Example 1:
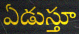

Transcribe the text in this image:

ఏడుస్తూ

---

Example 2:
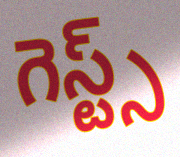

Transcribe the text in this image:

గెస్ట్స్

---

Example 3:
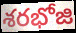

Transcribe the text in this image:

శరభోజి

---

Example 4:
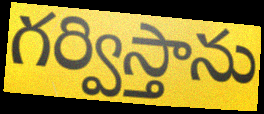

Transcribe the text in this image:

గర్విస్తాను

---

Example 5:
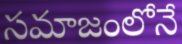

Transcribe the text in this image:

సమాజంలోనే